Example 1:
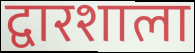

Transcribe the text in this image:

द्वारशाला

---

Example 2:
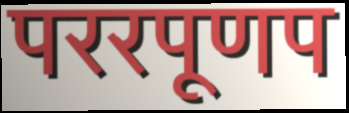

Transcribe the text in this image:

पररपूणप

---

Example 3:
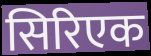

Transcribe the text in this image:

सिरिएक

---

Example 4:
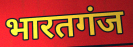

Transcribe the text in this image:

भारतगंज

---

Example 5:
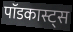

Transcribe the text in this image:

पॉडकास्ट्स